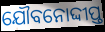
ଯୌବନୋଦ୍ଦୀପ୍ତ